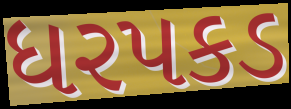
ધરપકડ